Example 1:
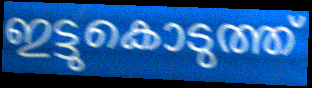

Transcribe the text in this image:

ഇട്ടുകൊടുത്ത്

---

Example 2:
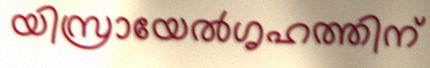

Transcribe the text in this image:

യിസ്രായേൽഗൃഹത്തിന്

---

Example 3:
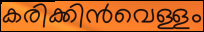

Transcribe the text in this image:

കരിക്കിൻവെള്ളം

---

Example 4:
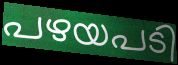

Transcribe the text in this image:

പഴയപടി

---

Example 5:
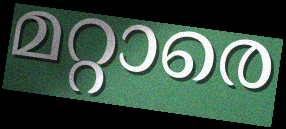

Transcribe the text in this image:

മറ്റാരെ